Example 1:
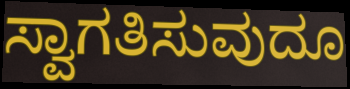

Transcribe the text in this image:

ಸ್ವಾಗತಿಸುವುದೂ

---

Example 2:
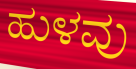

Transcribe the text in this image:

ಹುಳವು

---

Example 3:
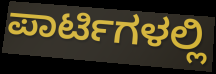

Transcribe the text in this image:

ಪಾರ್ಟಿಗಳಲ್ಲಿ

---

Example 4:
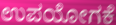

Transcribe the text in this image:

ಉಪಯೋಗಕೆ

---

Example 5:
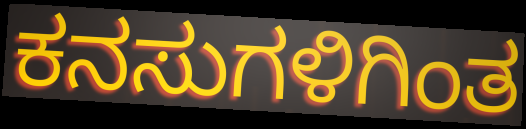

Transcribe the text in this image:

ಕನಸುಗಳಿಗಿಂತ